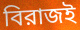
বিরাজই